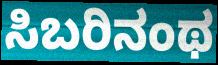
ಸಿಬರಿನಂಥ